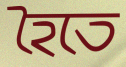
হৈতে